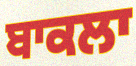
ਬਾਕਲਾ